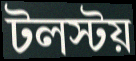
টলস্টয়